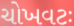
ચોખવટઃ